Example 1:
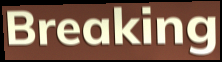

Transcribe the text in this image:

Breaking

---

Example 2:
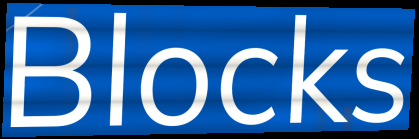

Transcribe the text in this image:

Blocks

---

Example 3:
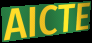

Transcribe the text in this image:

AICTE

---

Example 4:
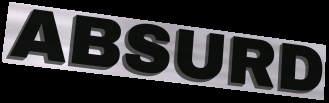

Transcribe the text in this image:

ABSURD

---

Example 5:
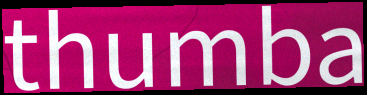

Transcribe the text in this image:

thumba